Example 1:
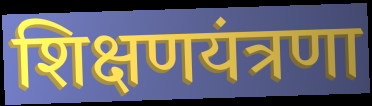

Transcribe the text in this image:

शिक्षणयंत्रणा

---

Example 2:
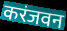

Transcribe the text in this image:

करंजवन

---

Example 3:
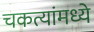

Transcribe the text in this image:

चकत्यांमध्ये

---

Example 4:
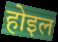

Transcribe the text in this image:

होइल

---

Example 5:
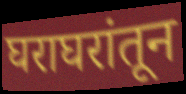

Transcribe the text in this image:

घराघरांतून